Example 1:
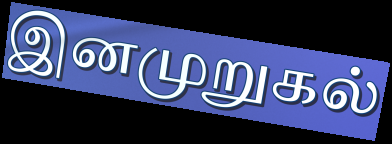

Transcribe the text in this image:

இனமுறுகல்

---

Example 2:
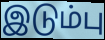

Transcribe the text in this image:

இடும்பு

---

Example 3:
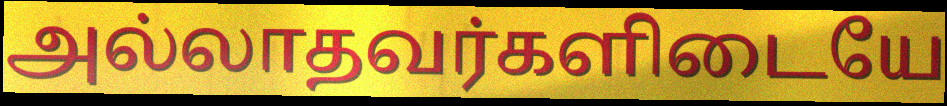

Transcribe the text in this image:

அல்லாதவர்களிடையே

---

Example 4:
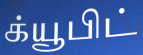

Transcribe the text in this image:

க்யூபிட்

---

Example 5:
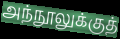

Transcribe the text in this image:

அந்நூலுக்குத்